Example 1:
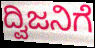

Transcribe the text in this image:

ದ್ವಿಜನಿಗೆ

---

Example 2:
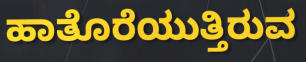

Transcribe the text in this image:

ಹಾತೊರೆಯುತ್ತಿರುವ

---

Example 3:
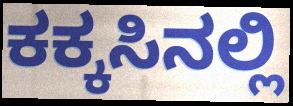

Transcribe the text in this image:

ಕಕ್ಕಸಿನಲ್ಲಿ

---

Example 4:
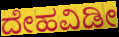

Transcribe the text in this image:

ದೇಹವಿಡೀ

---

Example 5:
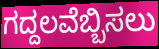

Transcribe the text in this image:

ಗದ್ದಲವೆಬ್ಬಿಸಲು